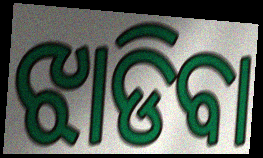
ଝାଡିବା